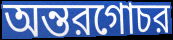
অন্তরগোচর